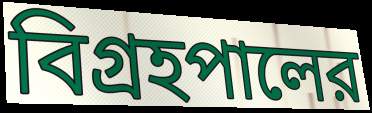
বিগ্রহপালের